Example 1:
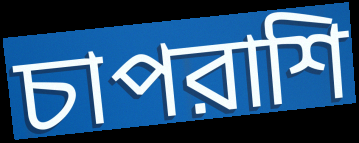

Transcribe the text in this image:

চাপরাশি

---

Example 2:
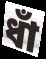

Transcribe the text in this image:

ধাঁ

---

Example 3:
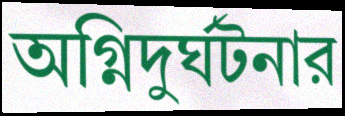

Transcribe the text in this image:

অগ্নিদুর্ঘটনার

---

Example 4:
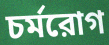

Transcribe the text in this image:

চর্মরোগ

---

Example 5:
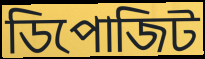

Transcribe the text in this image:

ডিপোজিট